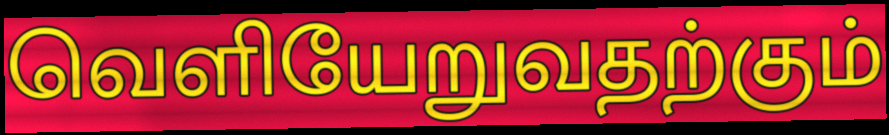
வெளியேறுவதற்கும்